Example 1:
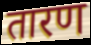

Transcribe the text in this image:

तारण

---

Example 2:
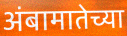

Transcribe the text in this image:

अंबामातेच्या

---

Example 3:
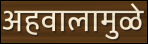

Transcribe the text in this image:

अहवालामुळे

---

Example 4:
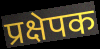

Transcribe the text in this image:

प्रक्षेपक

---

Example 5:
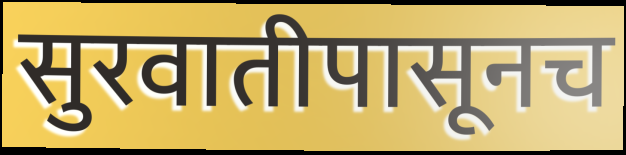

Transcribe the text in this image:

सुरवातीपासूनच